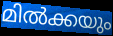
മിൽക്കയും